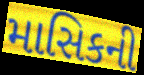
માસિકની